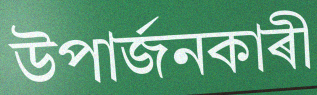
উপাৰ্জনকাৰী